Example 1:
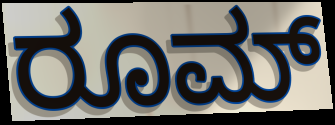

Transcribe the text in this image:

ರೂಮ್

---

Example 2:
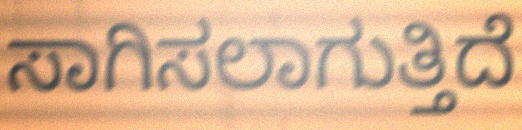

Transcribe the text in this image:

ಸಾಗಿಸಲಾಗುತ್ತಿದೆ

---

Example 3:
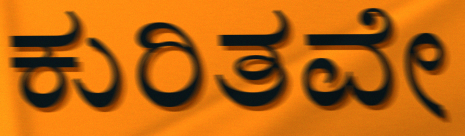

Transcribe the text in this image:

ಕುರಿತವೇ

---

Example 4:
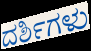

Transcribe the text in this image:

ದರ್ಶಿಗಳು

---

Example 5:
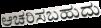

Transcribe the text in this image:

ಆಚರಿಸಬಹುದು